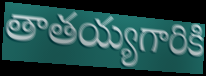
తాతయ్యగారికి